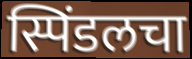
स्पिंडलचा